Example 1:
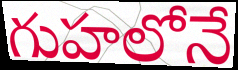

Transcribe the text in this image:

గుహలోనే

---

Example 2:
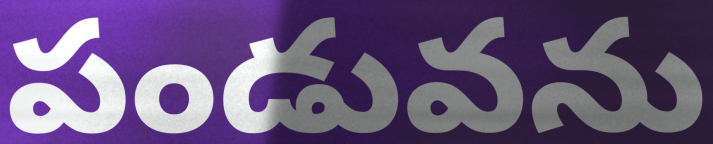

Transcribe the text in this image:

పండువను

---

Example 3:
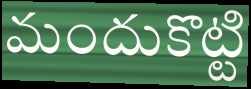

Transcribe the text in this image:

మందుకొట్టి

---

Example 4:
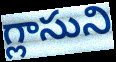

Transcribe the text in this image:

గ్లాసుని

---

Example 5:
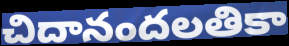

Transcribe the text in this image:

చిదానందలతికా